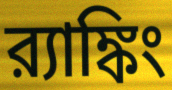
র‍্যাঙ্কিং